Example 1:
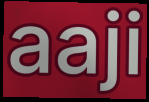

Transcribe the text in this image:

aaji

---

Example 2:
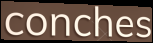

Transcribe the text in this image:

conches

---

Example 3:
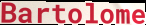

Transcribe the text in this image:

Bartolome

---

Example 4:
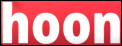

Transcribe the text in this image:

hoon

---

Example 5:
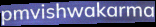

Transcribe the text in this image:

pmvishwakarma